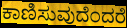
ಕಾಣಿಸುವುದೆಂದರೆ